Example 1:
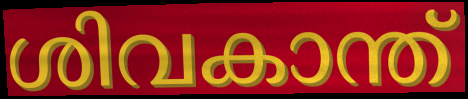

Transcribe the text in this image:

ശിവകാന്ത്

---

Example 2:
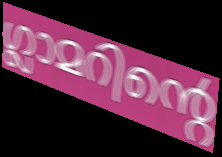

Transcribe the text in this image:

ഗ്ലാമറിന്റെ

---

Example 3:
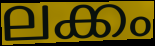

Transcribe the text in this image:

ലക്കം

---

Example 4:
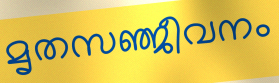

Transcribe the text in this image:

മൃതസഞ്ജീവനം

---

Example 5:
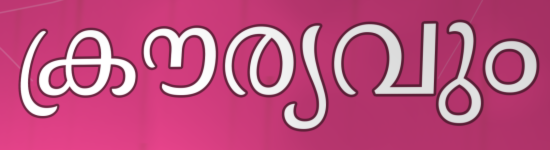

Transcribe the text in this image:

ക്രൗര്യവും